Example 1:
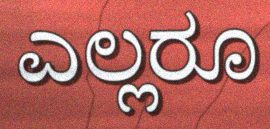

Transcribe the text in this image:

ಎಲ್ಲರೂ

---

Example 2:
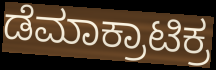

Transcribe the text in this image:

ಡೆಮಾಕ್ರಾಟಿಕ್ರ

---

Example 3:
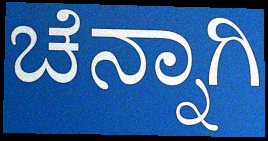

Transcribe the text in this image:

ಚೆನ್ನಾಗಿ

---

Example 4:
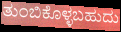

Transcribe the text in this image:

ತುಂಬಿಕೊಳ್ಳಬಹುದು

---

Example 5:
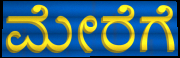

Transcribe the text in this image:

ಮೇರೆಗೆ